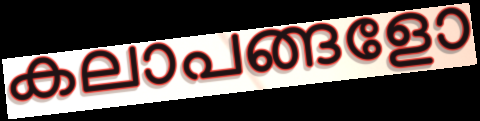
കലാപങ്ങളോ